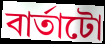
বাৰ্তাটো